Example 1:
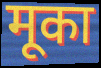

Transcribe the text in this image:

मूका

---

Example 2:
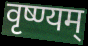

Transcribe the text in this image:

वृष्ण्यम्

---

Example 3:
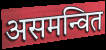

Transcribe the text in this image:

असमन्वित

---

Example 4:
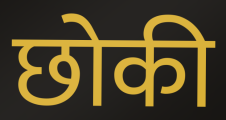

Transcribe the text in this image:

छोकी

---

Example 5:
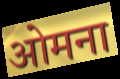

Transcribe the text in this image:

ओमना